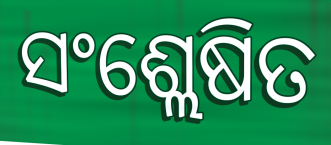
ସଂଶ୍ଲେଷିତ